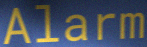
Alarm